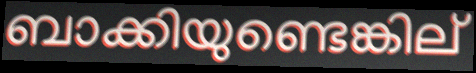
ബാക്കിയുണ്ടെങ്കില്